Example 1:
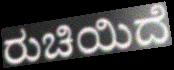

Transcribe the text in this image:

ರುಚಿಯಿದೆ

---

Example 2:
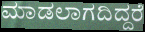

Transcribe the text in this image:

ಮಾಡಲಾಗದಿದ್ದರೆ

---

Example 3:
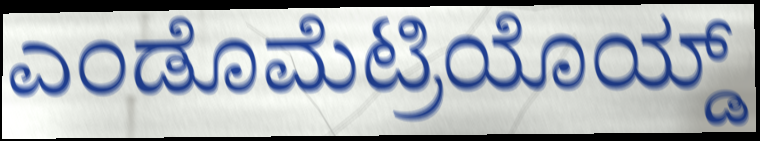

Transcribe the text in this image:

ಎಂಡೊಮೆಟ್ರಿಯೊಯ್ಡ್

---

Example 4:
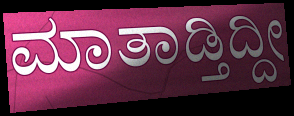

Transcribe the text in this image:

ಮಾತಾಡ್ತಿದ್ದೀ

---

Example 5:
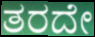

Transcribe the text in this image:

ತರದೇ